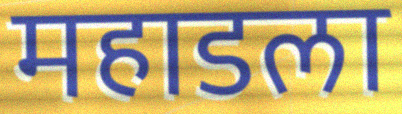
महाडला